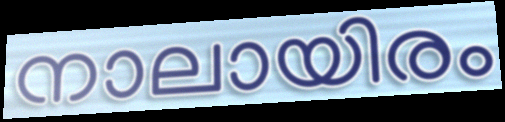
നാലായിരം